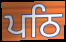
ਪਠਿ